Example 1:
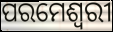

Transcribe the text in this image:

ପରମେଶ୍ୱରୀ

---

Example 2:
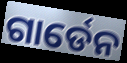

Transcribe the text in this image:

ଗାର୍ଡେନ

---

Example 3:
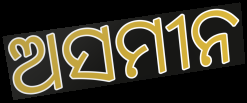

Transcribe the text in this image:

ଅସମୀନ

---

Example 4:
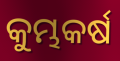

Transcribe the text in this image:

କୁମ୍ଭକର୍ଷ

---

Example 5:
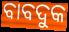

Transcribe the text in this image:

ବାବଦୁକ